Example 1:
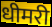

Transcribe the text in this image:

धीमरी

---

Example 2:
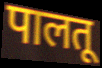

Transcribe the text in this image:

पालतू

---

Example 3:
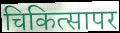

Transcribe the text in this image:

चिकित्सापर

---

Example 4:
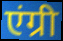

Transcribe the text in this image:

एंग्री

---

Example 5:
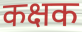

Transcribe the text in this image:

कक्षक